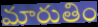
మారుతిం